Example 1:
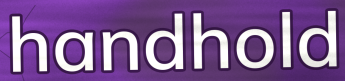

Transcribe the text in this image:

handhold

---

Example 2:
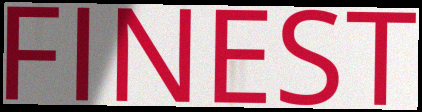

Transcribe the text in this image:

FINEST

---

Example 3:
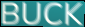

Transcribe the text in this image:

BUCK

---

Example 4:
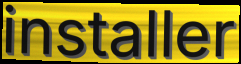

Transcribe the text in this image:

installer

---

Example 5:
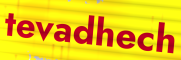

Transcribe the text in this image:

tevadhech